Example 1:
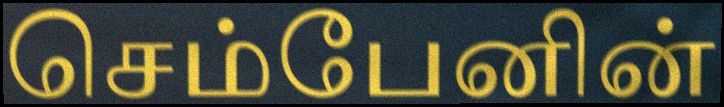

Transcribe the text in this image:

செம்பேனின்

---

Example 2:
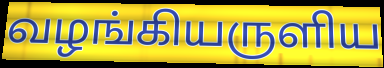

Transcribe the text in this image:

வழங்கியருளிய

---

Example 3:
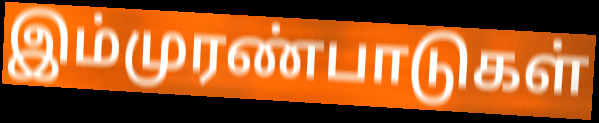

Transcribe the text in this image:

இம்முரண்பாடுகள்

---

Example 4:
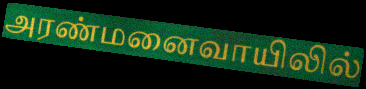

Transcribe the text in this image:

அரண்மனைவாயிலில்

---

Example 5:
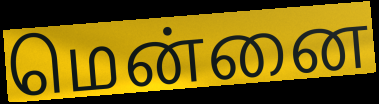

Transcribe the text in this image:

மென்னை